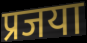
प्रजया